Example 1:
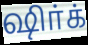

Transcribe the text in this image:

ஷிர்க்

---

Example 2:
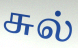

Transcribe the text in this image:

சுல்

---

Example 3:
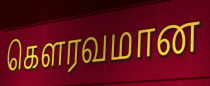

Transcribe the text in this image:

கெளரவமான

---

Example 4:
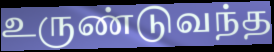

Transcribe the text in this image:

உருண்டுவந்த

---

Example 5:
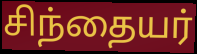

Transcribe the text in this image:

சிந்தையர்